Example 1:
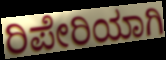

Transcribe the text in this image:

ರಿಪೇರಿಯಾಗಿ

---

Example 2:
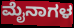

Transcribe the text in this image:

ಮೈನಾಗಳ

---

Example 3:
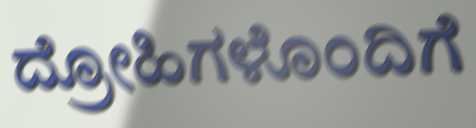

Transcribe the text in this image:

ದ್ರೋಹಿಗಳೊಂದಿಗೆ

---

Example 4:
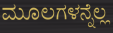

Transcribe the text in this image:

ಮೂಲಗಳನ್ನೆಲ್ಲ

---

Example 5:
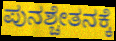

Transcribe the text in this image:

ಪುನಶ್ಚೇತನಕ್ಕೆ